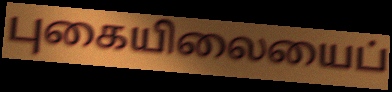
புகையிலையைப்